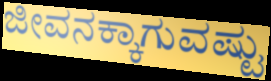
ಜೀವನಕ್ಕಾಗುವಷ್ಟು